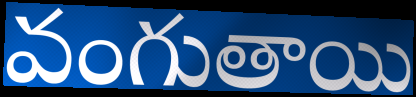
వంగుతాయి